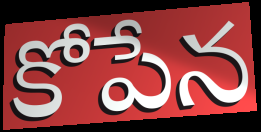
కోపేన